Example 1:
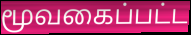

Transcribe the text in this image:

மூவகைப்பட்ட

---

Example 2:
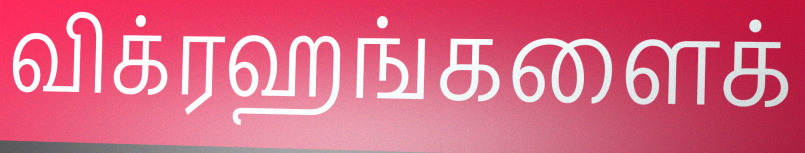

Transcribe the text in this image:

விக்ரஹங்களைக்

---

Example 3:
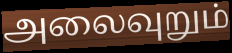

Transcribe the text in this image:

அலைவுறும்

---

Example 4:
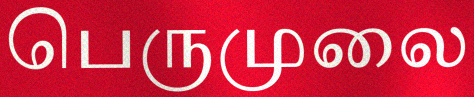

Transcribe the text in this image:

பெருமுலை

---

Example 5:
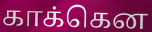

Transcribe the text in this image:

காக்கென